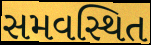
સમવસ્થિત